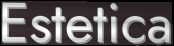
Estetica